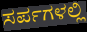
ಸರ್ಪಗಳಲ್ಲಿ